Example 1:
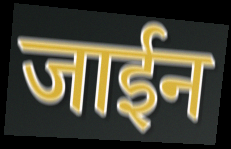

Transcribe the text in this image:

जाईन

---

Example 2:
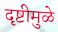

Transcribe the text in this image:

दृष्टीमुळे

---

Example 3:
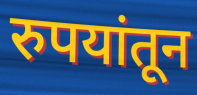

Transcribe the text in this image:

रुपयांतून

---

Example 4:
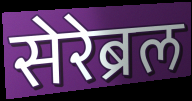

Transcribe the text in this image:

सेरेब्रल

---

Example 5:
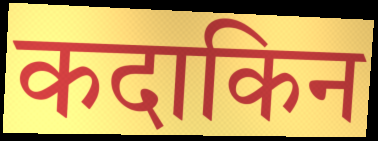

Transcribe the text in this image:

कदाकिन